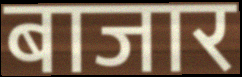
बाजार